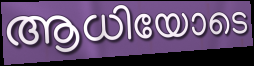
ആധിയോടെ